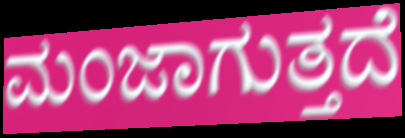
ಮಂಜಾಗುತ್ತದೆ